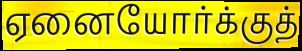
ஏனையோர்க்குத்